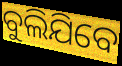
ବୁଲିଯିବେ